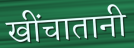
खींचातानी